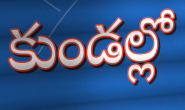
కుండల్లో